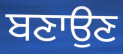
ਬਣਾਉਣ